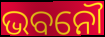
ଭବନୌ